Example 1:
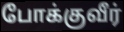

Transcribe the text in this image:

போக்குவீர்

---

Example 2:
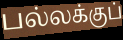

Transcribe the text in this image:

பல்லக்குப்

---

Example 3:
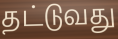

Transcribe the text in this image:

தட்டுவது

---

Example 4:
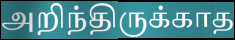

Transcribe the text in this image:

அறிந்திருக்காத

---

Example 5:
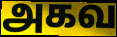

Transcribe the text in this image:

அகவ